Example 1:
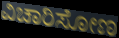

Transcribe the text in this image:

ವಿಚಾರಿಸೋಣ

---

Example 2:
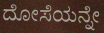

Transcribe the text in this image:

ದೋಸೆಯನ್ನೇ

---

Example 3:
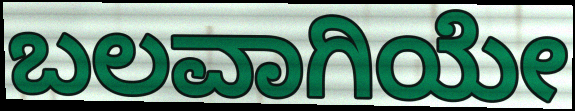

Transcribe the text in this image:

ಬಲವಾಗಿಯೇ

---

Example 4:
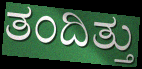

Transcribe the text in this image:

ತಂದಿತ್ತು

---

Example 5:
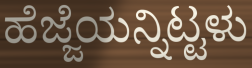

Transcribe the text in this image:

ಹೆಜ್ಜೆಯನ್ನಿಟ್ಟಳು